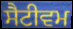
ਸੈਟੀਵਮ